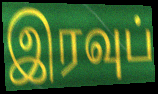
இரவுப்